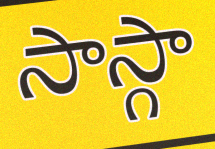
సాస్గా